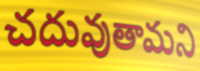
చదువుతామని